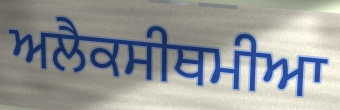
ਅਲੈਕਸੀਥਮੀਆ